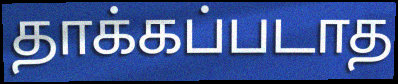
தாக்கப்படாத